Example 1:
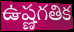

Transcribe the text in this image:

ఉష్ణగతిక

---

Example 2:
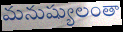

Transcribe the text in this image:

మనుష్యులంతా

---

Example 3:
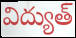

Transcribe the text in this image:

విద్యుత్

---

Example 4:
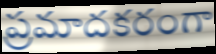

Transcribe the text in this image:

ప్రమాదకరంగా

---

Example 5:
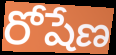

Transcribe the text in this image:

రోషేణ